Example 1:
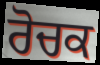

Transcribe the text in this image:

ਰੋਚਕ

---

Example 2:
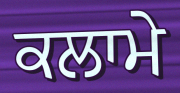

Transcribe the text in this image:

ਕਲਾਮੇ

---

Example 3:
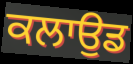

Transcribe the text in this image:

ਕਲਾਉਡ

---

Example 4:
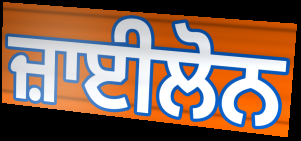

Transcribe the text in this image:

ਜ਼ਾਈਲੋਨ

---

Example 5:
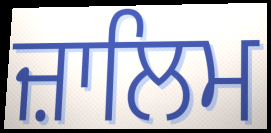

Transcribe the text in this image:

ਜ਼ਾਲਿਮ